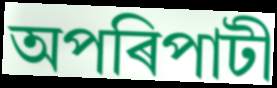
অপৰিপাটী